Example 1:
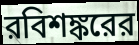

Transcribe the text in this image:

রবিশঙ্করের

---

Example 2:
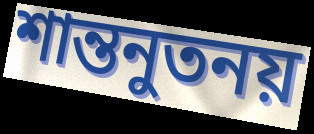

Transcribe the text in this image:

শান্তনুতনয়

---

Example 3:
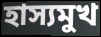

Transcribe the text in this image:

হাস্যমুখ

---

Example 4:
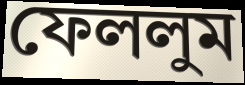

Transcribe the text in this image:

ফেললুম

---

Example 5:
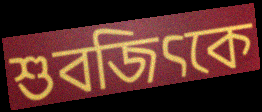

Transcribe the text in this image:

শুবজিৎকে